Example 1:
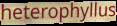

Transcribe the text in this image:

heterophyllus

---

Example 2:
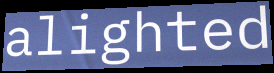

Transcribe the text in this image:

alighted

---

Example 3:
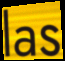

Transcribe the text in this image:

las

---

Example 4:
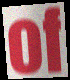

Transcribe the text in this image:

of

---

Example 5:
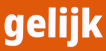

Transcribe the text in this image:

gelijk